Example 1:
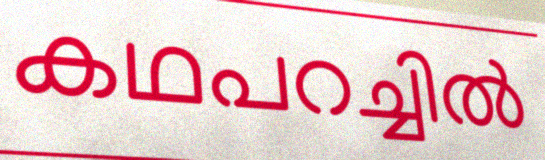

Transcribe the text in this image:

കഥപറച്ചിൽ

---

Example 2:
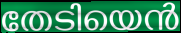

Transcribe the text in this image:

തേടിയെൻ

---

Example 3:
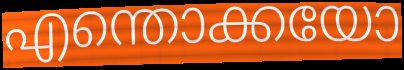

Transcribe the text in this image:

എന്തൊക്കയോ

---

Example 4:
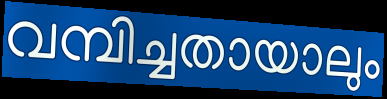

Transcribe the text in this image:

വമ്പിച്ചതായാലും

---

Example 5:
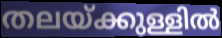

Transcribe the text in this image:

തലയ്ക്കുള്ളിൽ